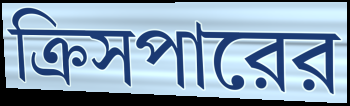
ক্রিসপারের